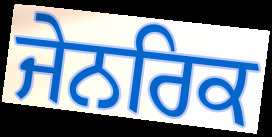
ਜੇਨਰਿਕ